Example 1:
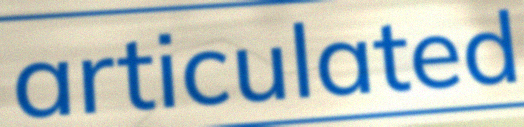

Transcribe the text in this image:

articulated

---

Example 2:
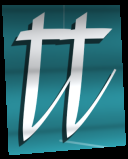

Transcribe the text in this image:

tt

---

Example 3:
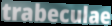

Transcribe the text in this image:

trabeculae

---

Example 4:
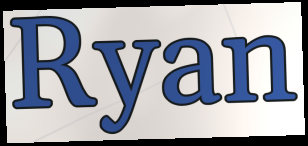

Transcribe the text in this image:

Ryan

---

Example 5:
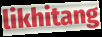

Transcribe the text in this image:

likhitang